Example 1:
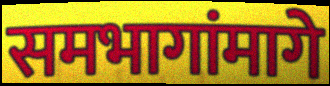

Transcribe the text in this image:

समभागांमागे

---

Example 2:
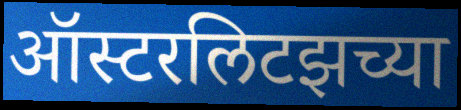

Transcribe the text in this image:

ऑस्टरलिटझच्या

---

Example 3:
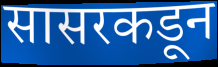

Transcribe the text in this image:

सासरकडून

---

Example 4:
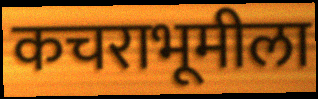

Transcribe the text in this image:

कचराभूमीला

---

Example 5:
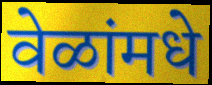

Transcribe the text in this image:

वेळांमधे